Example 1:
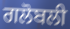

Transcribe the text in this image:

ਗਲੋਬਲੀ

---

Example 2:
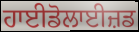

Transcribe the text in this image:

ਹਾਈਡੋਲਾਈਜ਼ਡ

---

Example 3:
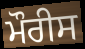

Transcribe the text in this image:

ਮੌਰੀਸ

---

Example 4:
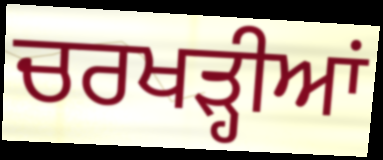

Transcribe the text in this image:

ਚਰਖੜ੍ਹੀਆਂ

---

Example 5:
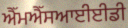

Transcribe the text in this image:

ਐੱਮਐੱਸਆਈਈਡੀ